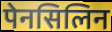
पेनसिलिन